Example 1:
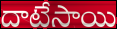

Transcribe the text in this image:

దాటేసాయి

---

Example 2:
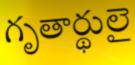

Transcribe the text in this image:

గృతార్థులై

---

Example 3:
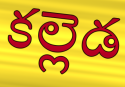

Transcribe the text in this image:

కల్లెడ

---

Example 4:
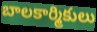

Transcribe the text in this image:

బాలకార్మికులు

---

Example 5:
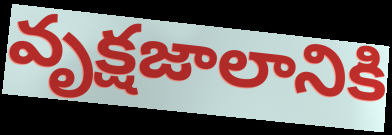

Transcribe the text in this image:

వృక్షజాలానికి